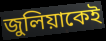
জুলিয়াকেই